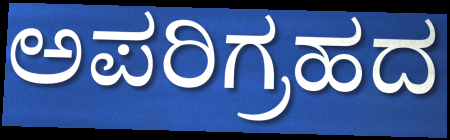
ಅಪರಿಗ್ರಹದ